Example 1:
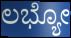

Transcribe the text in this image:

ಲಭ್ಯೋ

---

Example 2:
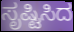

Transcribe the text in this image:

ಸೃಷ್ಟಿಸಿದ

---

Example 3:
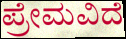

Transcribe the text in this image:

ಪ್ರೇಮವಿದೆ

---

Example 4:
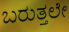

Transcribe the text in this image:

ಬರುತ್ತಲೇ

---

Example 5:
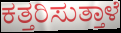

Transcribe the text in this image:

ಕತ್ತರಿಸುತ್ತಾಳೆ